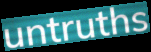
untruths